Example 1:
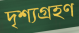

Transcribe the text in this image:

দৃশ্যগ্ৰহণ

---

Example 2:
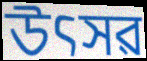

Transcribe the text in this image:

উৎসৱ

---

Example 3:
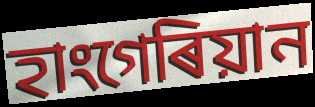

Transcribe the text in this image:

হাংগেৰিয়ান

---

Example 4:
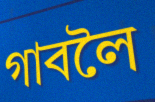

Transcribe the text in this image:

গাবলৈ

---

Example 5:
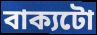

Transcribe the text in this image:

বাক্যটো